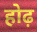
होढ़